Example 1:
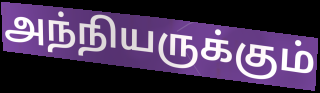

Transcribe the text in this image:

அந்நியருக்கும்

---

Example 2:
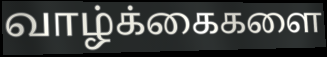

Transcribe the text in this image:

வாழ்க்கைகளை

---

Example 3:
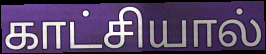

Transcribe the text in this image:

காட்சியால்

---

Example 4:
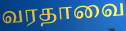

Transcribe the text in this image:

வரதாவை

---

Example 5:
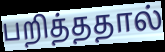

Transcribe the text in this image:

பறித்ததால்